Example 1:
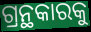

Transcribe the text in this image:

ଗ୍ରନ୍ଥକାରକୁ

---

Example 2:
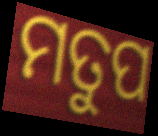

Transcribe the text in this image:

ମତୁପ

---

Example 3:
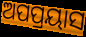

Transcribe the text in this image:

ଅପପ୍ରୟାସ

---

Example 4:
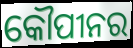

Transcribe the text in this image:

କୌପୀନର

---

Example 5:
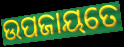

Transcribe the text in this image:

ଉପଜାୟତେ